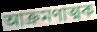
আক্রমণাত্মক